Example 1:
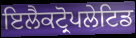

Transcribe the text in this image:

ਇਲੈਕਟ੍ਰੋਪਲੇਟਿਡ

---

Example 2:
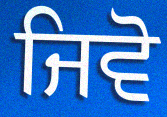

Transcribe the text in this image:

ਜਿਵੋ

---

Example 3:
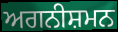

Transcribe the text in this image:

ਅਗਨੀਸ਼ਮਨ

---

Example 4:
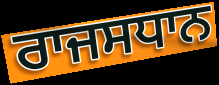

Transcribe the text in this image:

ਰਾਜਸਧਾਨ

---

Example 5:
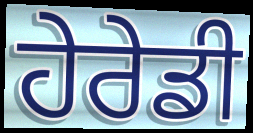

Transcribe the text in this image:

ਹੇਰੇਡੀ